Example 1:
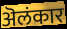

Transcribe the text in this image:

ऄलंकार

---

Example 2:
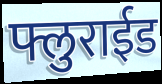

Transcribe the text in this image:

फ्लुराईड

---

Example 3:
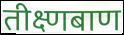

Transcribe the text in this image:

तीक्ष्णबाण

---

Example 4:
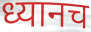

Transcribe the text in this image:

ध्यानच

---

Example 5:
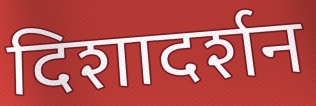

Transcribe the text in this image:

दिशादर्शन